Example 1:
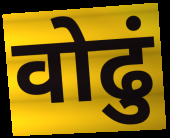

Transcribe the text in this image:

वोढुं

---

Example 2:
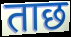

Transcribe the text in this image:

ताछ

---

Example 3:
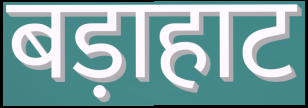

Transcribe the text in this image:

बड़ाहाट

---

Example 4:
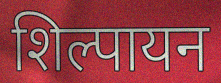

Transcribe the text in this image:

शिल्पायन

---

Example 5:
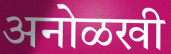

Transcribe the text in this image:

अनोळखी